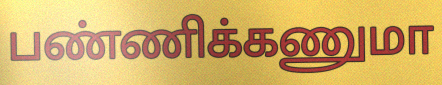
பண்ணிக்கணுமா